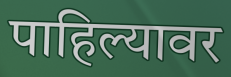
पाहिल्यावर